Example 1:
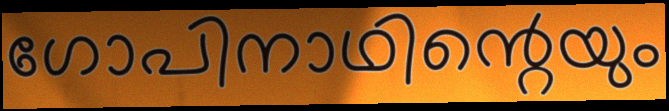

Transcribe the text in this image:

ഗോപിനാഥിന്റെയും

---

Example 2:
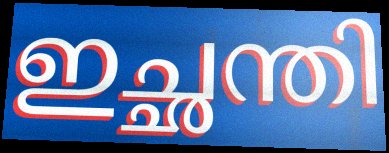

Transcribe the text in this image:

ഇച്ഛന്തി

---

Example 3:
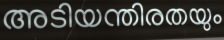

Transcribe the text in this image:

അടിയന്തിരതയും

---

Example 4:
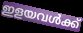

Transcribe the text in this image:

ഇളയവൾക്ക്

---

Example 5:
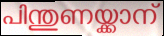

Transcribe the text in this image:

പിന്തുണയ്ക്കാന്